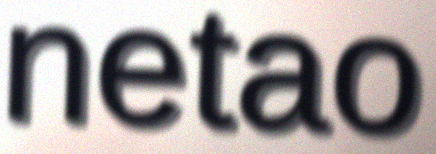
netao